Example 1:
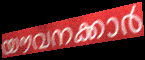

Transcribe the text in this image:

യൗവനക്കാർ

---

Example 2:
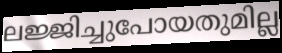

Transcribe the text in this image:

ലജ്ജിച്ചുപോയതുമില്ല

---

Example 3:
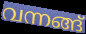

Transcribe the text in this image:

വന്നങ്ങ്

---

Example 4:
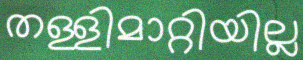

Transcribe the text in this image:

തള്ളിമാറ്റിയില്ല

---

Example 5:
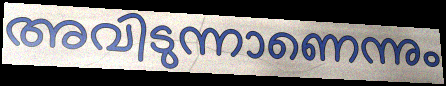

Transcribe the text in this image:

അവിടുന്നാണെന്നും